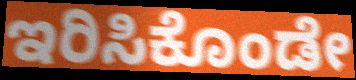
ಇರಿಸಿಕೊಂಡೇ